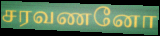
சரவணனோ